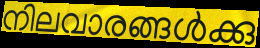
നിലവാരങ്ങൾക്കു